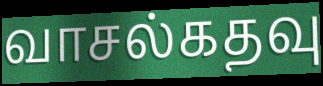
வாசல்கதவு